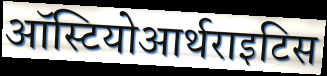
ऑस्टियोआर्थराइटिस